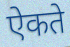
ऐकते